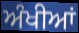
ਅੰਖੀਆਂ